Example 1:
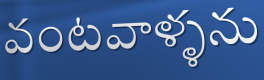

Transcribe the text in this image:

వంటవాళ్ళను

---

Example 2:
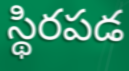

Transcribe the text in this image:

స్థిరపడ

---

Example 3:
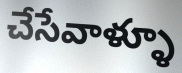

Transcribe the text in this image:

చేసేవాళ్ళూ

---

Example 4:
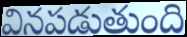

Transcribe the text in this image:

వినపడుతుంది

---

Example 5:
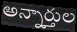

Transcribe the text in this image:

అన్నార్తుల